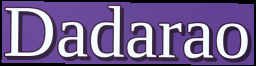
Dadarao